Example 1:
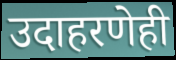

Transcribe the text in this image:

उदाहरणेही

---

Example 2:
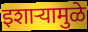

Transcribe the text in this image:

इशाऱ्यामुळे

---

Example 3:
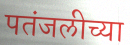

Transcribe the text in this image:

पतंजलीच्या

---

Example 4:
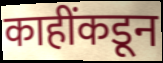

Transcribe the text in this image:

काहींकडून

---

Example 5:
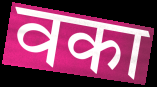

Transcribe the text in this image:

वका